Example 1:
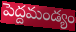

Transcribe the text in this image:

పెద్దమండ్యం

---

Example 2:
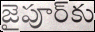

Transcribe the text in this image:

జైపూర్‌కు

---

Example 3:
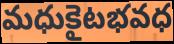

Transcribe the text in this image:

మధుకైటభవధ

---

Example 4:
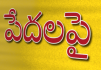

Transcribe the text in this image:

పేదలపై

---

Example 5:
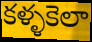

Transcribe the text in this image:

కళ్ళకెలా